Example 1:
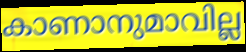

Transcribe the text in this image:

കാണാനുമാവില്ല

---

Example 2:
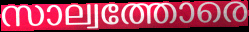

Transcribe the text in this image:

സാല്വത്തോരെ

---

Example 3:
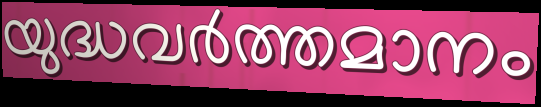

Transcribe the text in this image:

യുദ്ധവർത്തമാനം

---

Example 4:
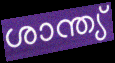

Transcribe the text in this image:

ശാന്ത്യ്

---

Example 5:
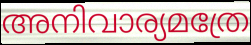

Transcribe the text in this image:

അനിവാര്യമത്രേ